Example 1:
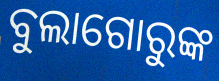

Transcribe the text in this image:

ବୁଲାଗୋରୁଙ୍କ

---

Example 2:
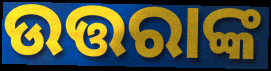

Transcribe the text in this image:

ଉତ୍ତରାଙ୍କ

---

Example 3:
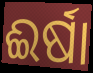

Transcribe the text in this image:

ଈର୍ଷା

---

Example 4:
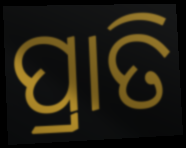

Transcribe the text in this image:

ପ୍ରାତି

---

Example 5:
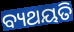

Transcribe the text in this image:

ବ୍ୟଥୟତି